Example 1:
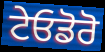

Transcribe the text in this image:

ਟੇਓਡੋਰੋ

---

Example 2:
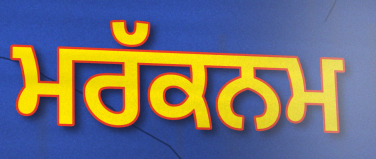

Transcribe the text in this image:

ਮਰੱਕਨਮ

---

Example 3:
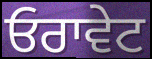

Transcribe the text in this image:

ਓਰਾਵੇਟ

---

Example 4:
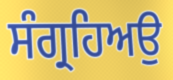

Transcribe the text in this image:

ਸੰਗ੍ਰਹਿਅਉ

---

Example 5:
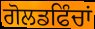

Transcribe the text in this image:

ਗੋਲਡਫਿੰਚਾਂ